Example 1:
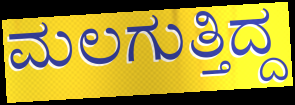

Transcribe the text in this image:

ಮಲಗುತ್ತಿದ್ದ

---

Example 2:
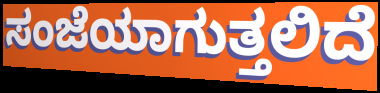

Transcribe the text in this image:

ಸಂಜೆಯಾಗುತ್ತಲಿದೆ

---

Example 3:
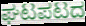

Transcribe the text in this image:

ಘಟಪಟದ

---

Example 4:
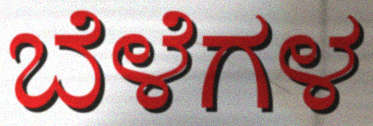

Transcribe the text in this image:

ಬೆಳೆಗಳ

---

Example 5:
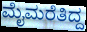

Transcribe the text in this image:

ಮೈಮರೆತಿದ್ದ